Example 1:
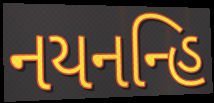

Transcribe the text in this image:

નયનન્હિ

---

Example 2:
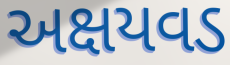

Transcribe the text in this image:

અક્ષયવડ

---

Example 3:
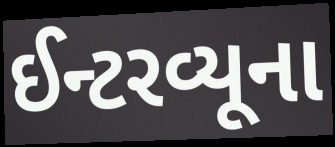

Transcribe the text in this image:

ઈન્ટરવ્યૂના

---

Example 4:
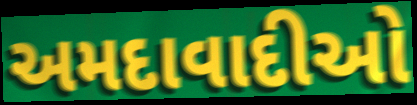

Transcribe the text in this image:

અમદાવાદીઓ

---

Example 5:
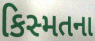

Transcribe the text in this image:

કિસ્મતના